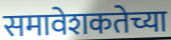
समावेशकतेच्या